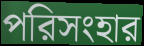
পরিসংহার